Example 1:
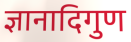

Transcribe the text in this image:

ज्ञानादिगुण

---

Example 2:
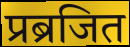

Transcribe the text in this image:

प्रब्रजित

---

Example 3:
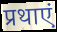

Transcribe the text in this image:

प्रथाएं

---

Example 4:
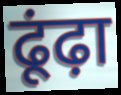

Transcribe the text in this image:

ढूंढ़ा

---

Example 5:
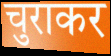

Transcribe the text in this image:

चुराकर